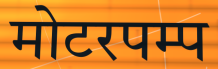
मोटरपम्प